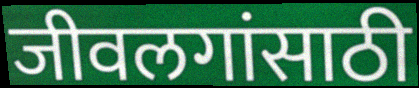
जीवलगांसाठी